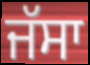
ਜੱਸਾ